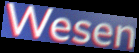
Wesen